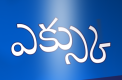
ఎక్స్కు